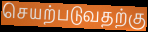
செயற்படுவதற்கு